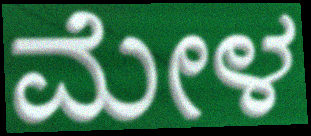
ಮೇಳ